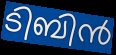
ടിബിൻ